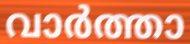
വാർത്താ